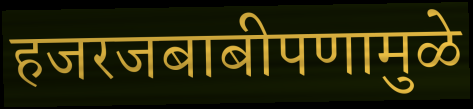
हजरजबाबीपणामुळे